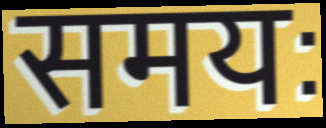
समयः